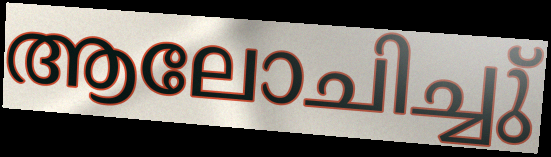
ആലോചിച്ചു്